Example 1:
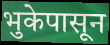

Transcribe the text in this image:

भुकेपासून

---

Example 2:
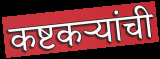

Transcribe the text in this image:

कष्टकऱ्यांची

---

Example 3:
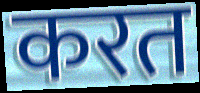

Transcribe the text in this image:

करत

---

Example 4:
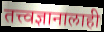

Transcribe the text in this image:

तत्त्वज्ञानालाही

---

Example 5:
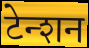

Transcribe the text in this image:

टेन्शन